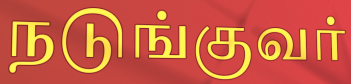
நடுங்குவர்